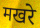
मखरे